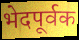
भेदपूर्वक